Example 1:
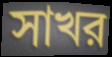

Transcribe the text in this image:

সাখর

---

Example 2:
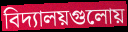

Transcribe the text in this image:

বিদ্যালয়গুলোয়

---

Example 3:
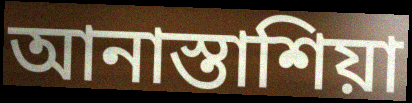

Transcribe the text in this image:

আনাস্তাশিয়া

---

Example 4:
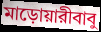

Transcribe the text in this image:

মাড়োয়ারীবাবু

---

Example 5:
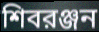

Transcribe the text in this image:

শিবরঞ্জন